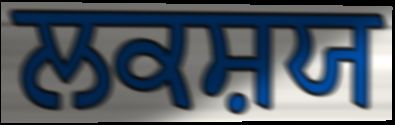
ਲਕਸ਼ਯ